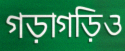
গড়াগড়িও